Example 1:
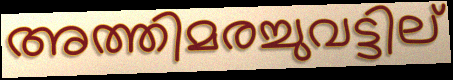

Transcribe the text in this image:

അത്തിമരച്ചുവട്ടില്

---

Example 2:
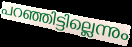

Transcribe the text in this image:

പറഞ്ഞിട്ടില്ലെന്നും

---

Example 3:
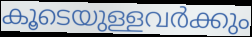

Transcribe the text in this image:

കൂടെയുള്ളവർക്കും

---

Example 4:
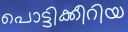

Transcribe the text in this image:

പൊട്ടിക്കീറിയ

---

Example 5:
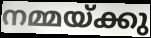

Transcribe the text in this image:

നമ്മയ്ക്കു